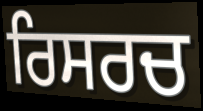
ਰਿਸਰਚ